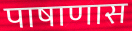
पाषाणास